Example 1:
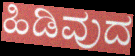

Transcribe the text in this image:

ಹಿಡಿವುದ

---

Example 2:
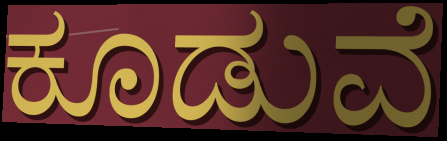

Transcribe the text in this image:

ಕೂಡುವೆ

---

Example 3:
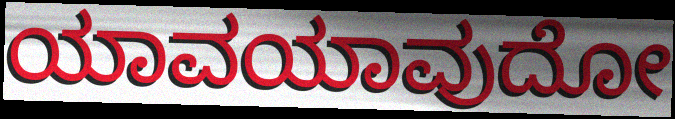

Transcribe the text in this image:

ಯಾವಯಾವುದೋ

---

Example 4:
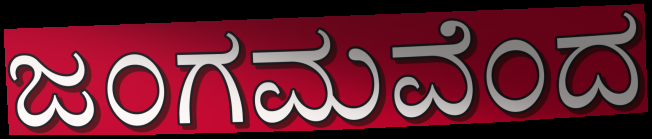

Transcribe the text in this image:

ಜಂಗಮವೆಂದ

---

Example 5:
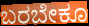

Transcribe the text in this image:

ಬರಬೇಕೂ